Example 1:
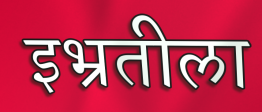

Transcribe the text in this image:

इभ्रतीला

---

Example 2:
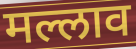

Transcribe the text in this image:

मल्लाव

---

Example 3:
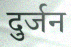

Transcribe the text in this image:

दुर्जन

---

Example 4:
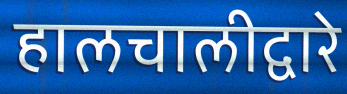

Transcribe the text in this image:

हालचालीद्वारे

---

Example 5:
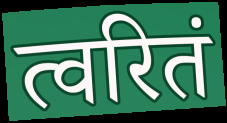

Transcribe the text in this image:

त्वरितं